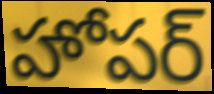
హోపర్